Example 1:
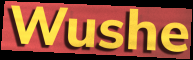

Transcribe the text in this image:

Wushe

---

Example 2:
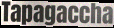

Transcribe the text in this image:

Tapagaccha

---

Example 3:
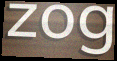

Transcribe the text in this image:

zog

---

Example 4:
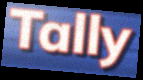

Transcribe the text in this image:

Tally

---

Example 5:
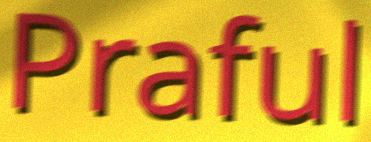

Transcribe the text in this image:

Praful